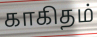
காகிதம்